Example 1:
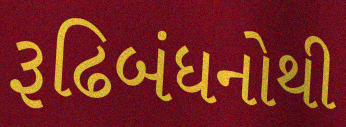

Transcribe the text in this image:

રૂઢિબંધનોથી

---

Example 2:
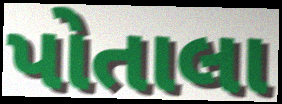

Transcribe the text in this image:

પોતાલા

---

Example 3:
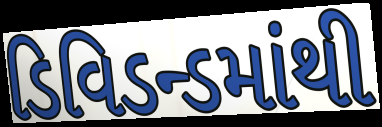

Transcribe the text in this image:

ડિવિડન્ડમાંથી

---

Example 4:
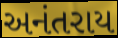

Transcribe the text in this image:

અનંતરાય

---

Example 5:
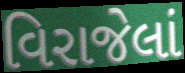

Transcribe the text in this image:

વિરાજેલાં